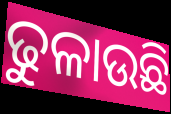
ଢୁଳାଉଛି